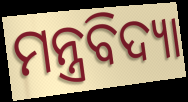
ମନ୍ତ୍ରବିଦ୍ୟା